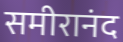
समीरानंद